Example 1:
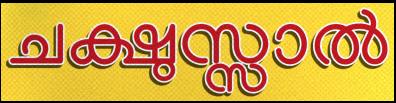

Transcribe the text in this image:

ചക്ഷുസ്സാൽ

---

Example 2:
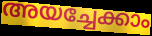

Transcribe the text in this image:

അയച്ചേക്കാം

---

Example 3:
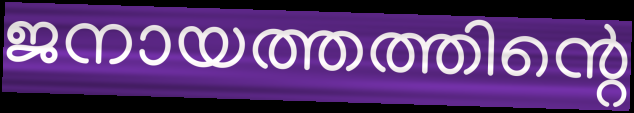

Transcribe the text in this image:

ജനായത്തത്തിന്റെ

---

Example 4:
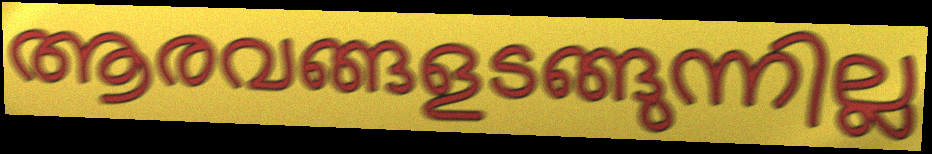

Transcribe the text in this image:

ആരവങ്ങളടങ്ങുന്നില്ല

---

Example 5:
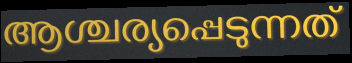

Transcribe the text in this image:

ആശ്ചര്യപ്പെടുന്നത്